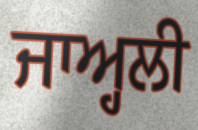
ਜਾਅ੍ਹਲੀ